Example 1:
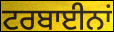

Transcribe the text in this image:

ਟਰਬਾਈਨਾਂ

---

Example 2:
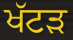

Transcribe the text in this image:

ਖੱਟੜ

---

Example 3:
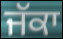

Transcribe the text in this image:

ਜੱਕਾ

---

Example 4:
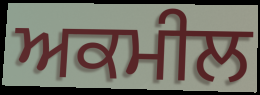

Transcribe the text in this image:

ਅਕਮੀਲ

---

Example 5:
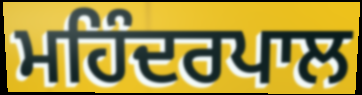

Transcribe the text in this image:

ਮਹਿੰਦਰਪਾਲ